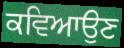
ਕਵਿਆਉਣ